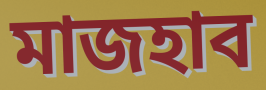
মাজহাব